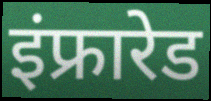
इंफ्रारेड